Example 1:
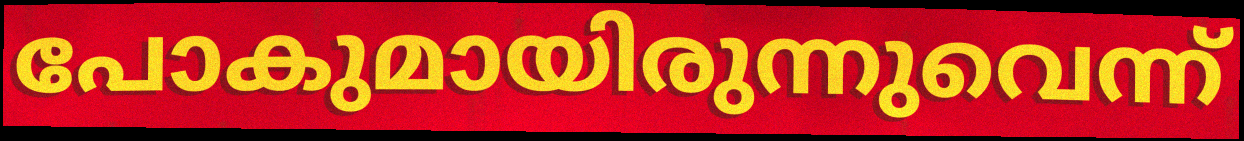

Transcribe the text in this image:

പോകുമായിരുന്നുവെന്ന്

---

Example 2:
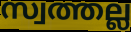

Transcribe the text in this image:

സ്വത്തല്ല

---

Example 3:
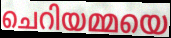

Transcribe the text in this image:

ചെറിയമ്മയെ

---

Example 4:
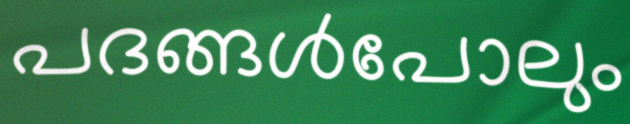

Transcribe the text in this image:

പദങ്ങൾപോലും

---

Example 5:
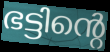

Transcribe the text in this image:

ഭട്ടിന്റെ